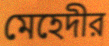
মেহেদীর